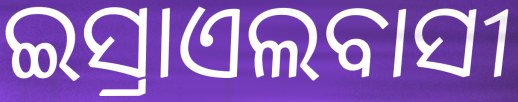
ଇସ୍ରାଏଲବାସୀ